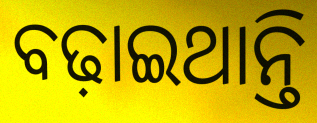
ବଢ଼ାଇଥାନ୍ତି